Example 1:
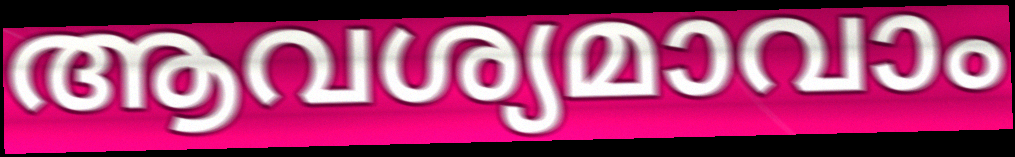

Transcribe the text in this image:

ആവശ്യമാവാം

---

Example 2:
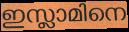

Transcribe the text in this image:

ഇസ്ലാമിനെ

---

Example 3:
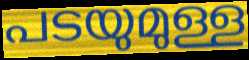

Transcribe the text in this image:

പടയുമുള്ള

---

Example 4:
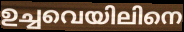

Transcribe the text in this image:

ഉച്ചവെയിലിനെ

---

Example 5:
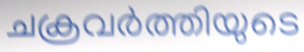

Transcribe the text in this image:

ചക്രവർത്തിയുടെ